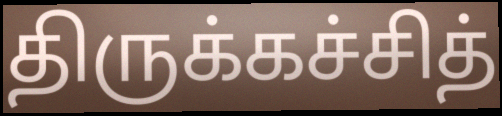
திருக்கச்சித்